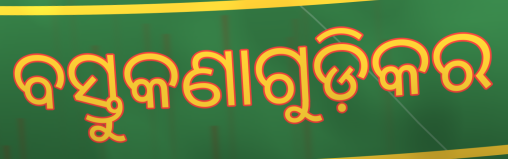
ବସ୍ତୁକଣାଗୁଡ଼ିକର